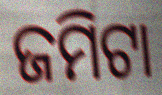
ଜମିଟା